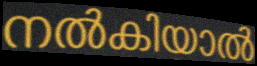
നൽകിയാൽ